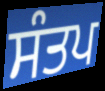
ਸੰਤਪ